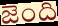
జెంది